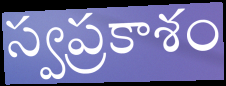
స్వప్రకాశం